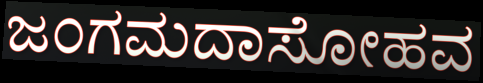
ಜಂಗಮದಾಸೋಹವ